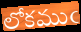
లోకముఁ